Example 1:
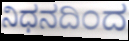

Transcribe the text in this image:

ನಿಧನದಿಂದ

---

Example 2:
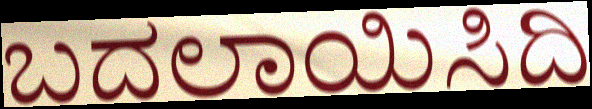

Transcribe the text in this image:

ಬದಲಾಯಿಸಿದಿ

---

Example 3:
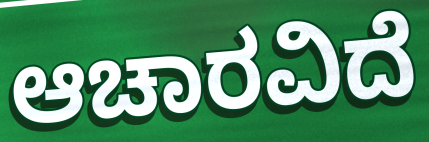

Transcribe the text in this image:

ಆಚಾರವಿದೆ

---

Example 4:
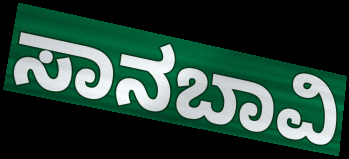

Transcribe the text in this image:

ಸಾನಬಾವಿ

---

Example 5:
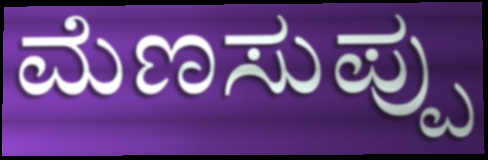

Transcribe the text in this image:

ಮೆಣಸುಪ್ಪು